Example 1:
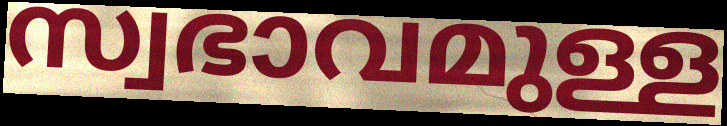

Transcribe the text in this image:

സ്വഭാവമുള്ള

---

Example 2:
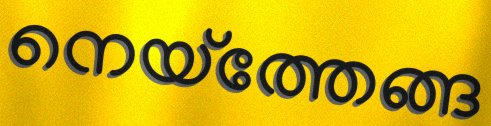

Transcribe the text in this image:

നെയ്ത്തേങ്ങ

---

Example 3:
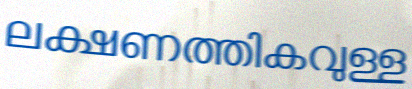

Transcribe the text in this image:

ലക്ഷണത്തികവുള്ള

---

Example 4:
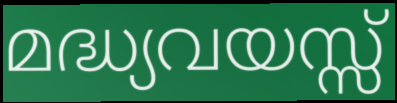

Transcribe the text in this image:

മദ്ധ്യവയസ്സ്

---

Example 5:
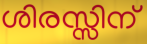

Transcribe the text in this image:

ശിരസ്സിന്